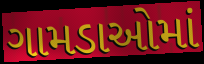
ગામડાઓમાં